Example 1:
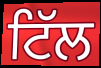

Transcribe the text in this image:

ਟਿੱਲ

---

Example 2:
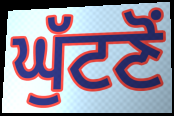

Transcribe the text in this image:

ਘੁੱਟਣੋਂ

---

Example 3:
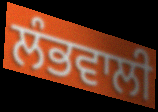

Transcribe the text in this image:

ਲੰਭਵਾਲੀ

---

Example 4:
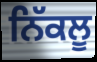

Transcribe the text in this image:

ਨਿੱਕਲੂ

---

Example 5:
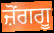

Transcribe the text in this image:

ਜ਼ੋਂਗਗੂ